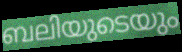
ബലിയുടെയും